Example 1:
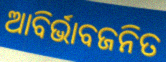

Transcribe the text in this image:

ଆବିର୍ଭାବଜନିତ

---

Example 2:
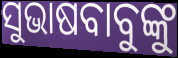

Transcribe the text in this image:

ସୁଭାଷବାବୁଙ୍କୁ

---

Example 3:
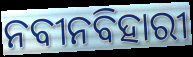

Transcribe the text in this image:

ନବୀନବିହାରୀ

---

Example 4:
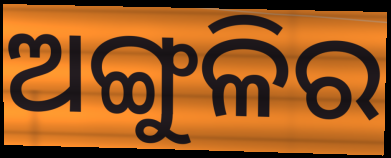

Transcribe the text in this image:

ଅଙ୍ଗୁଳିର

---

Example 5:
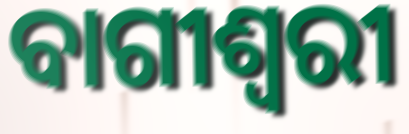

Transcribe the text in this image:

ବାଗୀଶ୍ୱରୀ